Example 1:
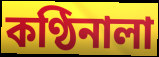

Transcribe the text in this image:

কণ্ঠিনালা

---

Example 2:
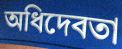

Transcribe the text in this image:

অধিদেবতা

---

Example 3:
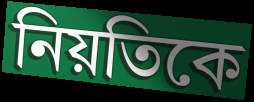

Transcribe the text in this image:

নিয়তিকে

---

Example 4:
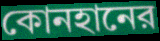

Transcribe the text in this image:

কোনহানের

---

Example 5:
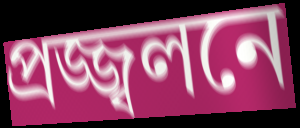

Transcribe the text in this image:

প্রজ্জ্বলনে